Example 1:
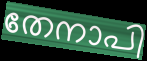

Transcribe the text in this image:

തേനാപി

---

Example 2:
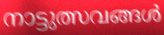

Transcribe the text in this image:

നാട്ടുത്സവങ്ങൾ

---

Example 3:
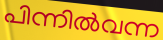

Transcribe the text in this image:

പിന്നിൽവന്ന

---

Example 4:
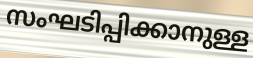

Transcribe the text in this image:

സംഘടിപ്പിക്കാനുള്ള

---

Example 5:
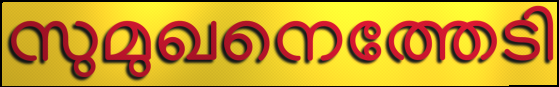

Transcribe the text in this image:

സുമുഖനെത്തേടി